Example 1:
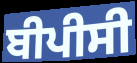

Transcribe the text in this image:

ਬੀਪੀਸੀ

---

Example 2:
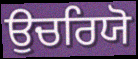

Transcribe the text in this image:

ਉਚਰਿਯੋ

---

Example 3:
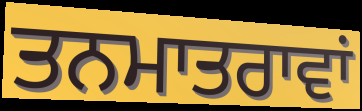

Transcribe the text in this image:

ਤਨਮਾਤਰਾਵਾਂ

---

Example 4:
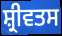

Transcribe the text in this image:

ਸ਼੍ਰੀਵਤਸ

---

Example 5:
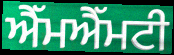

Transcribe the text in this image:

ਐੱਮਐੱਮਟੀ